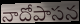
నాదోపాసన